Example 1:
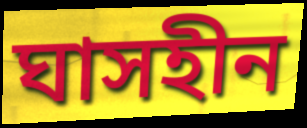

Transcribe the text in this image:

ঘাসহীন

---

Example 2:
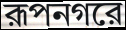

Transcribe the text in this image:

রূপনগরে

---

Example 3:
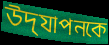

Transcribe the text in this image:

উদ্‌যাপনকে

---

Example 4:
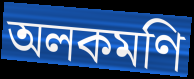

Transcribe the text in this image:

অলকমণি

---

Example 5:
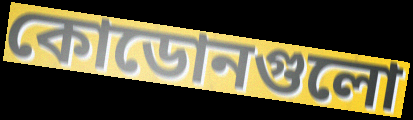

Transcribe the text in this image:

কোডোনগুলো